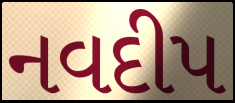
નવદીપ